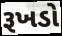
રૂખડો